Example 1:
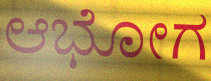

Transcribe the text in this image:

ಆಭೋಗ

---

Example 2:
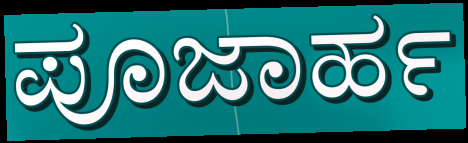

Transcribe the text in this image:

ಪೂಜಾರ್ಹ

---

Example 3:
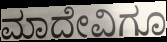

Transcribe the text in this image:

ಮಾದೇವಿಗೂ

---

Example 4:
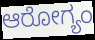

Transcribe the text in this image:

ಆರೋಗ್ಯಂ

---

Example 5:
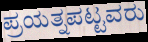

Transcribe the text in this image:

ಪ್ರಯತ್ನಪಟ್ಟವರು